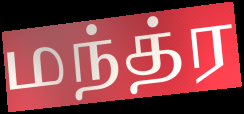
மந்த்ர